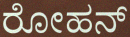
ರೋಹನ್